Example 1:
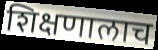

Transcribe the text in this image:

शिक्षणालाच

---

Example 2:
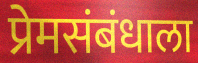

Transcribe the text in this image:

प्रेमसंबंधाला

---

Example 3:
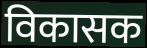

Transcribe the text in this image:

विकासक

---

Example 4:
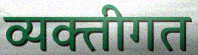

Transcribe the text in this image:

व्यक्तीगत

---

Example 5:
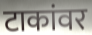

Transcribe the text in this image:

टाकांवर